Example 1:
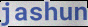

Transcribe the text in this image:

jashun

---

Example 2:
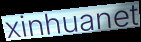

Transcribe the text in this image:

xinhuanet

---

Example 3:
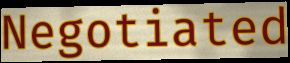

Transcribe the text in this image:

Negotiated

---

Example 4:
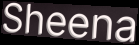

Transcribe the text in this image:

Sheena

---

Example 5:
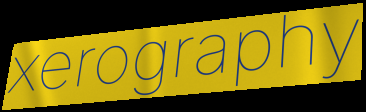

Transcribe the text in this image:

xerography